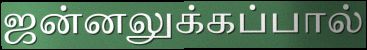
ஜன்னலுக்கப்பால்